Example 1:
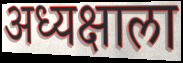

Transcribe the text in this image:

अध्यक्षाला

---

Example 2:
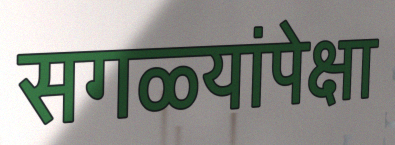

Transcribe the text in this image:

सगळ्यांपेक्षा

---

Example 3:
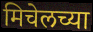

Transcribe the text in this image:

मिचेलच्या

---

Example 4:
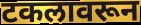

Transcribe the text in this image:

टकलावरून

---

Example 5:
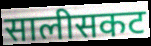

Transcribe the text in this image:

सालीसकट